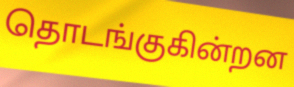
தொடங்குகின்றன